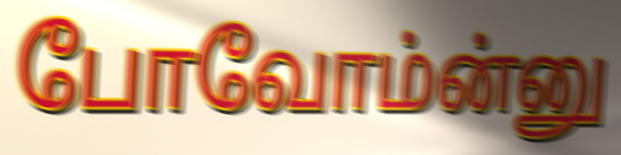
போவோம்ன்னு